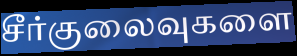
சீர்குலைவுகளை